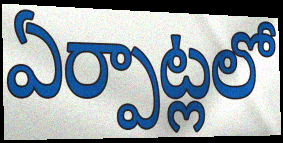
ఏర్పాట్లలో